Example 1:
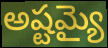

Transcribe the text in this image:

అష్టమ్యై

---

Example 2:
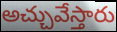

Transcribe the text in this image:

అచ్చువేస్తారు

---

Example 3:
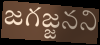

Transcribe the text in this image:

జగజ్జనని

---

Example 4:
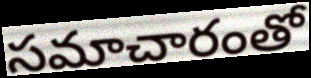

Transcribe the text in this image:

సమాచారంతో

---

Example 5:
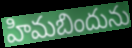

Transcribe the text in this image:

హిమబిందును